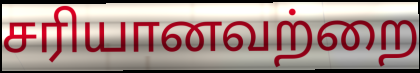
சரியானவற்றை